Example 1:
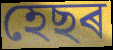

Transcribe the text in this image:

হেছৰ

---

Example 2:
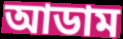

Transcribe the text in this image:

আডাম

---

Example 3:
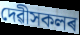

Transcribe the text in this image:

দেৱীসকলৰ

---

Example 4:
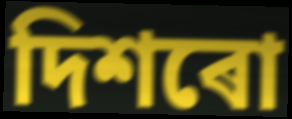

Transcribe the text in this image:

দিশৰো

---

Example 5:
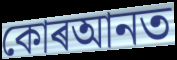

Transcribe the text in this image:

কোৰআনত